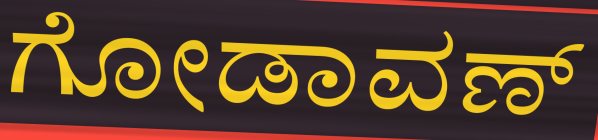
ಗೋಡಾವಣ್